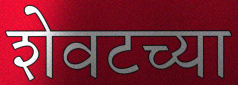
शेवटच्या